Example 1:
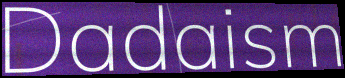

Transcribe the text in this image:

Dadaism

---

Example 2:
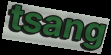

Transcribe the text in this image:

tsang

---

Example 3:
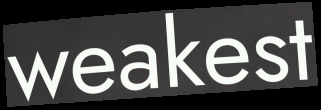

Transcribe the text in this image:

weakest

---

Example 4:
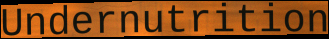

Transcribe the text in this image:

Undernutrition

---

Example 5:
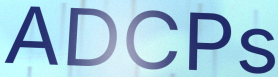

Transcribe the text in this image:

ADCPs